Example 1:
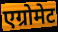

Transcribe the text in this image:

एग्रोमेट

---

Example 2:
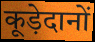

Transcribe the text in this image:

कूड़ेदानों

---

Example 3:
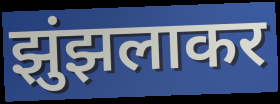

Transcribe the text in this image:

झुंझलाकर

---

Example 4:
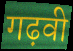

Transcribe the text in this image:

गढ़वी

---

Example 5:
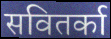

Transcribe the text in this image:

सवितर्का